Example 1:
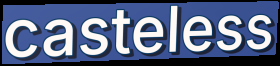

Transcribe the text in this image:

casteless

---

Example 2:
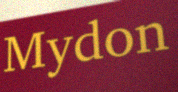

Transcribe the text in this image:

Mydon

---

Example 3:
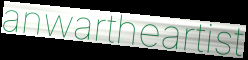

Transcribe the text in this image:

anwartheartist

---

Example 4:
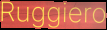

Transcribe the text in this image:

Ruggiero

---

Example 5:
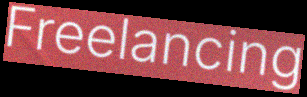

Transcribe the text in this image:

Freelancing